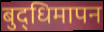
बुद्धिमापन